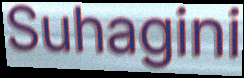
Suhagini